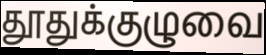
தூதுக்குழுவை